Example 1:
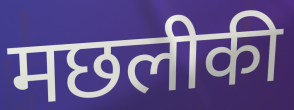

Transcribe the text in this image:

मछलीकी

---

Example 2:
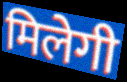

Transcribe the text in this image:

मिलेगी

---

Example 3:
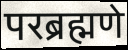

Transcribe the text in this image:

परब्रह्मणे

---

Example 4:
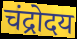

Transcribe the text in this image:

चंद्रोदय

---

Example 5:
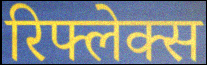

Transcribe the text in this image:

रिफ्लेक्स